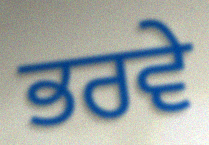
ਭਰਵੇ